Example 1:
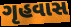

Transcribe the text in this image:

ગૃહવાસ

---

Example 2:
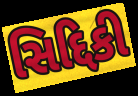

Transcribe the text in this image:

સિદ્દિકી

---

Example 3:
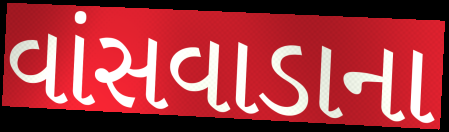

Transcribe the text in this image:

વાંસવાડાના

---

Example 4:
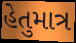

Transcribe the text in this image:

હેતુમાત્ર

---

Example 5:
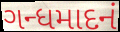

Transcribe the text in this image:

ગન્ધમાદનં